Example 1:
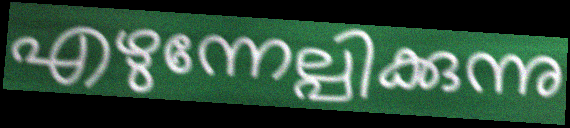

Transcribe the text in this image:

എഴുന്നേല്പിക്കുന്നു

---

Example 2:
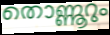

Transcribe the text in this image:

തൊണ്ണൂറും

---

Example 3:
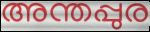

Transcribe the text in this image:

അന്തപ്പുര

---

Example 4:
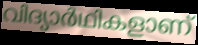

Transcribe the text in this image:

വിദ്യാർഥികളാണ്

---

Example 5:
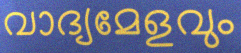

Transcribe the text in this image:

വാദ്യമേളവും